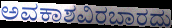
ಅವಕಾಶವಿರಬಾರದು